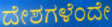
ದೇಶಗಳೆಂದೇ